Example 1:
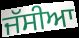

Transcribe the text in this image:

ਜੱਸੀਆ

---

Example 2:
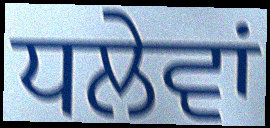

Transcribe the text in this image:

ਧਲੇਵਾਂ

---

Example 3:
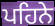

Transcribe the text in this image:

ਪਹਿਨੇ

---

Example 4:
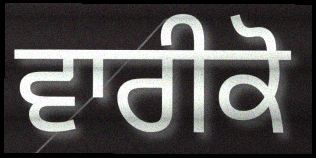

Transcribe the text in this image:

ਵਾਰੀਕੋ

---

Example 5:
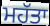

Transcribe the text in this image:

ਮਹੱਤਾ